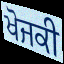
ਖੋਜਕੀ